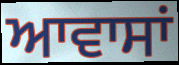
ਆਵਾਸਾਂ